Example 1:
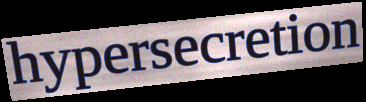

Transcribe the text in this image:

hypersecretion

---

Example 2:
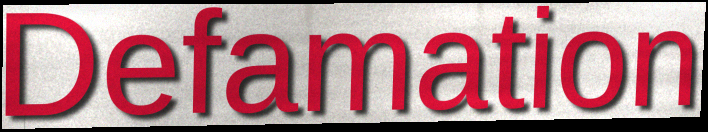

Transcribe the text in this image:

Defamation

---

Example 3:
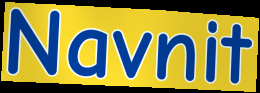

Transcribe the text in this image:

Navnit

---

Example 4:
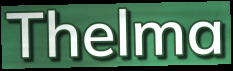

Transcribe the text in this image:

Thelma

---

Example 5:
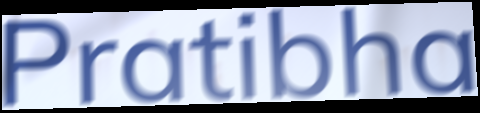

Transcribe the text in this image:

Pratibha